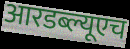
आरडब्ल्यूएच